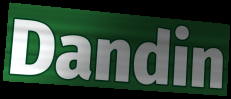
Dandin